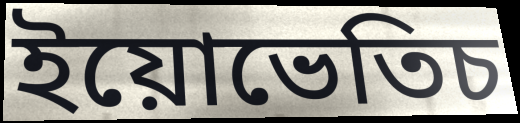
ইয়োভেতিচ